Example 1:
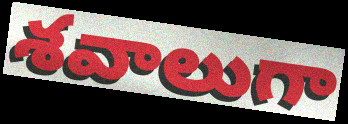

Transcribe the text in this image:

శవాలుగా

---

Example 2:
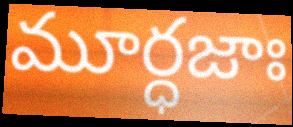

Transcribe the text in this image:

మూర్ధజాః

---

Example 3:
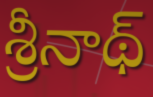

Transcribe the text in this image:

శ్రీనాథ్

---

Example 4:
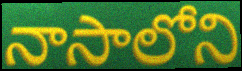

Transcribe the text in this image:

నాసాలోని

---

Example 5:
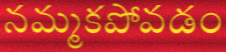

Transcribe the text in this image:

నమ్మకపోవడం